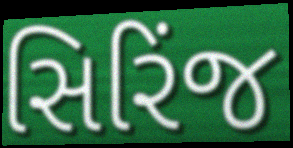
સિરિંજ